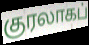
குரலாகப்